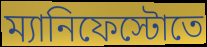
ম্যানিফেস্টোতে